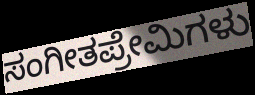
ಸಂಗೀತಪ್ರೇಮಿಗಳು